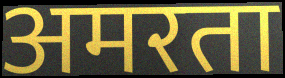
अमरता